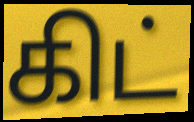
கிட்